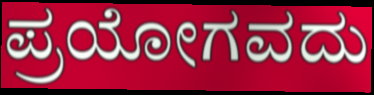
ಪ್ರಯೋಗವದು